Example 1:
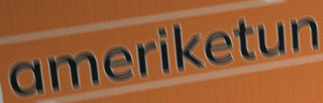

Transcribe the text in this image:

ameriketun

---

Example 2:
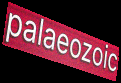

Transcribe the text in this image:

palaeozoic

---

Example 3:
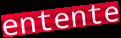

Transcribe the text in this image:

entente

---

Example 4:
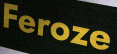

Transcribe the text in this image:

Feroze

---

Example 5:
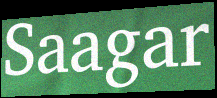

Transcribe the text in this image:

Saagar